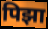
पिझा